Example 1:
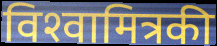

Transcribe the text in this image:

विश्वामित्रकी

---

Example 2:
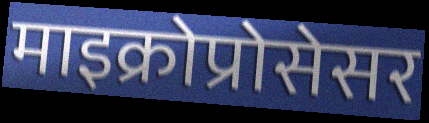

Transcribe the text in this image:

माइक्रोप्रोसेसर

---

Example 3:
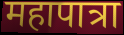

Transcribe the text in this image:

महापात्रा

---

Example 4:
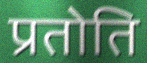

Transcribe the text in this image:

प्रतोति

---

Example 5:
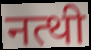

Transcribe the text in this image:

नत्‍थी